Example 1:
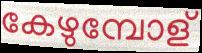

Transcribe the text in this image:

കേഴുമ്പോള്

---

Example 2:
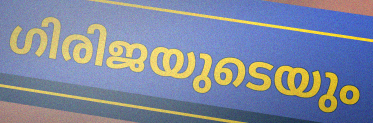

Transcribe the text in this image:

ഗിരിജയുടെയും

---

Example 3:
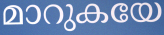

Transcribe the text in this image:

മാറുകയേ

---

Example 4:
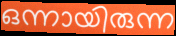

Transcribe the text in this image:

ഒന്നായിരുന്ന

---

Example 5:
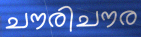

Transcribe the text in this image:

ചൗരിചൗര